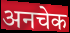
अनचेक